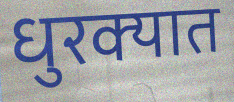
धुरक्यात